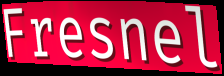
Fresnel